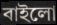
বাইলো